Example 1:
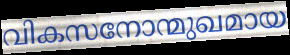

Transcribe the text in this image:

വികസനോന്മുഖമായ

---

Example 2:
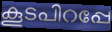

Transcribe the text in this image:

കൂടപിറപ്പേ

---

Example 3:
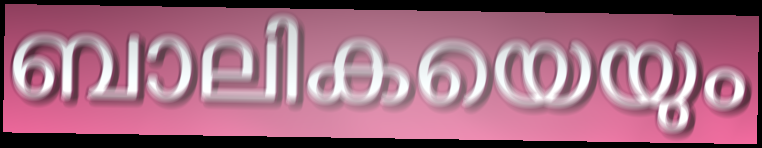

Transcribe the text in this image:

ബാലികയെയും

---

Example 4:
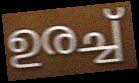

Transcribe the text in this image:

ഉരച്ച്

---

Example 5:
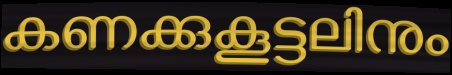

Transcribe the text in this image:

കണക്കുകൂട്ടലിനും